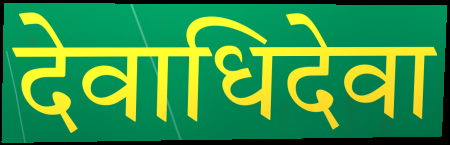
देवाधिदेवा